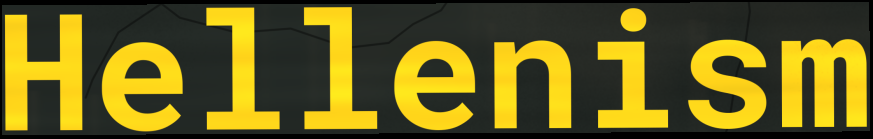
Hellenism